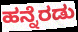
ಹನ್ನೆರಡು